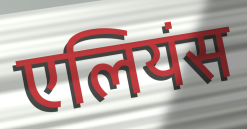
एलियंस